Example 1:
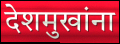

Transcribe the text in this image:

देशमुखांना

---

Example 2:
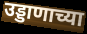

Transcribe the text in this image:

उड्डाणाच्या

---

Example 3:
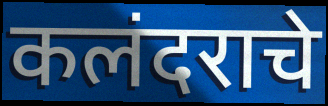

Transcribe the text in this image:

कलंदराचे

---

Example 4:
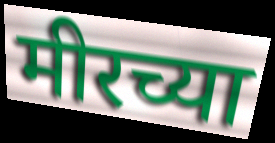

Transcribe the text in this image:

मीरच्या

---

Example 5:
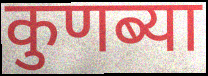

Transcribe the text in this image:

कुणब्या